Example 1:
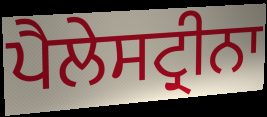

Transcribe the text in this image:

ਪੈਲੇਸਟ੍ਰੀਨਾ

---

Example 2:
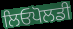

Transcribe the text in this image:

ਲਿਓਪੋਲਡੀ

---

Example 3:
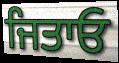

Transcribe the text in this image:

ਜਿਤਾਓ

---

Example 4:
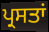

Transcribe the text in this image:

ਪ੍ਰਸਤਾਂ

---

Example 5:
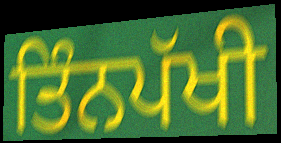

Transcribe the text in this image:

ਤਿੰਨਪੱਖੀ